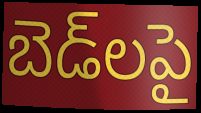
బెడ్‌లపై